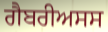
ਗੈਬਰੀਅਸਸ